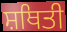
ਸ਼ਥਿਤੀ